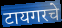
टायगरचे